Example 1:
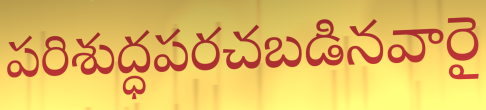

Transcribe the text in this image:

పరిశుద్ధపరచబడినవారై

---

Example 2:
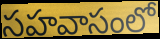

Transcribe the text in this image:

సహవాసంలో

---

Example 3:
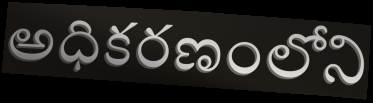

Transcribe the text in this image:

అధికరణంలోని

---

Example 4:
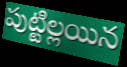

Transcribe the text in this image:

పుట్టిల్లయిన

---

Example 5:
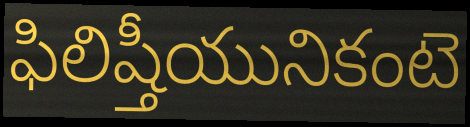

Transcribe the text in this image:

ఫిలిష్తీయునికంటె